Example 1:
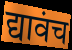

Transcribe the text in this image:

द्यावंच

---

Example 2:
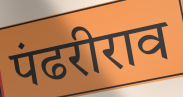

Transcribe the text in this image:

पंढरीराव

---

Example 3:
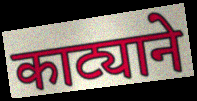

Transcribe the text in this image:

काट्याने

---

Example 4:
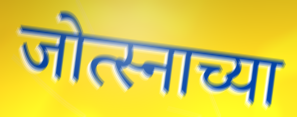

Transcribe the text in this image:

जोत्स्नाच्या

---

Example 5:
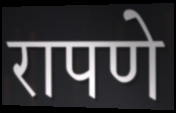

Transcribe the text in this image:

रापणे